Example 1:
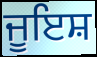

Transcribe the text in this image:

ਜੂਇਸ਼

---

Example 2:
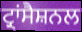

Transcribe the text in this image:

ਟ੍ਰਾਂਸੈਸ਼ਨਲ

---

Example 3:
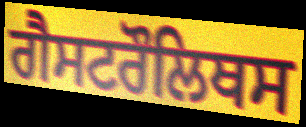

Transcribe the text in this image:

ਗੈਸਟਰੌਲਿਥਸ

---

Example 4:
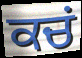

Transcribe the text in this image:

ਕਚਂ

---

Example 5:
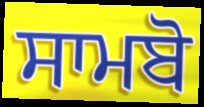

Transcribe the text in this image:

ਸਾਮਬੋ